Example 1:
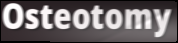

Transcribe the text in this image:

Osteotomy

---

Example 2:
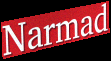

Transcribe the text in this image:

Narmad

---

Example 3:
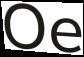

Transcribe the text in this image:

Oe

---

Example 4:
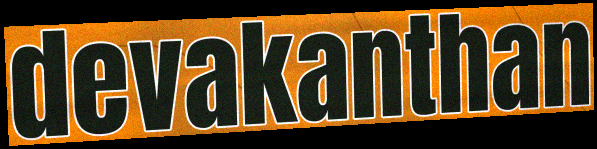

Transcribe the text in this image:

devakanthan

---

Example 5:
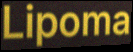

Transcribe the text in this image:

Lipoma